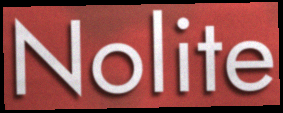
Nolite